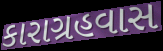
કારાગ્રહવાસ